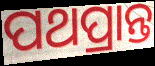
ପଥପ୍ରାନ୍ତ